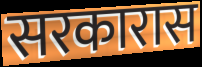
सरकारास